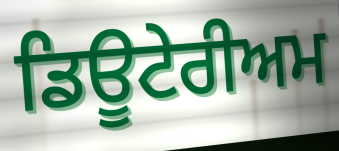
ਡਿਊਟੇਰੀਅਮ